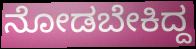
ನೋಡಬೇಕಿದ್ದ